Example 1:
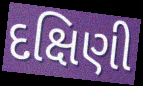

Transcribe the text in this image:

દક્ષિણી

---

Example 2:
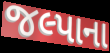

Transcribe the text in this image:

જલ્પાના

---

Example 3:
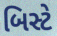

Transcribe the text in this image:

બિસ્ટે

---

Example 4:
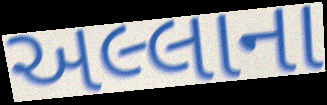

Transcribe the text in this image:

અલ્લાના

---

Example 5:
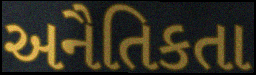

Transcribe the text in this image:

અનૈતિકતા